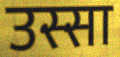
उस्सा